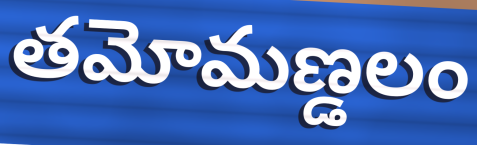
తమోమణ్డలం